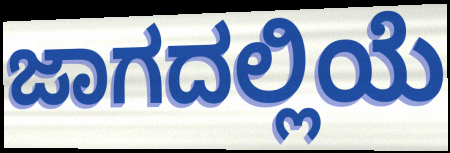
ಜಾಗದಲ್ಲಿಯೆ